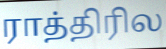
ராத்திரில